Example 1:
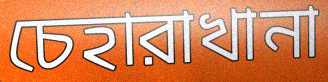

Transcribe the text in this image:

চেহারাখানা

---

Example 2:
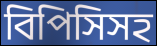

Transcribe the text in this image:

বিপিসিসহ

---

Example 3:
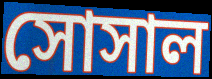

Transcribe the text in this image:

সোসাল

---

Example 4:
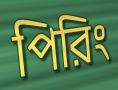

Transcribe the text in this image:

পিরিং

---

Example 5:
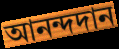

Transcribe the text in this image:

আনন্দদান